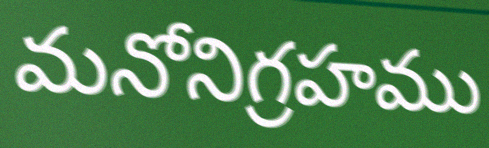
మనోనిగ్రహము